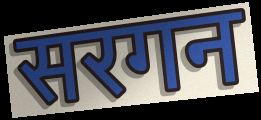
सरगन